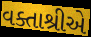
વક્તાશ્રીએ